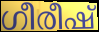
ഗീരീഷ്